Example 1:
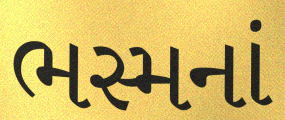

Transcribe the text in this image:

ભસ્મનાં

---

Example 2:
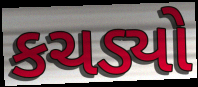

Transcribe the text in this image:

કચડ્યો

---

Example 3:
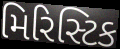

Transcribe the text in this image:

મિરિસ્ટિક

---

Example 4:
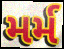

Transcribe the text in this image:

મર્મ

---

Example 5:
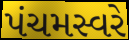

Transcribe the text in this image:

પંચમસ્વરે